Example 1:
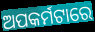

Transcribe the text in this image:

ଅପକର୍ମଟାରେ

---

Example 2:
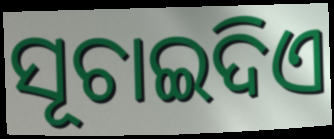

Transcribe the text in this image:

ସୂଚାଇଦିଏ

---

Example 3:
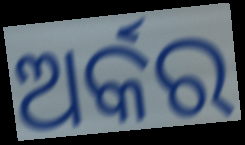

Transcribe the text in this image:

ଅର୍କର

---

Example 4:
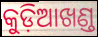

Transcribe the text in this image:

କୁଡ଼ିଆଖଣ୍ଡ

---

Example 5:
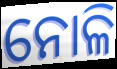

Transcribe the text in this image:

ନୋଳି